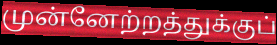
முன்னேற்றத்துக்குப்